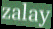
zalay